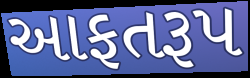
આફતરૂપ